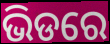
ଭିଡରେ